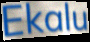
Ekalu